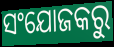
ସଂଯୋଜକରୁ